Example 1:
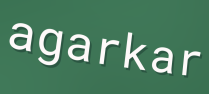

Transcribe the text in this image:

agarkar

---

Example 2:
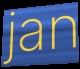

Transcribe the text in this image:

jan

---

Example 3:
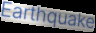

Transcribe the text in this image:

Earthquake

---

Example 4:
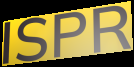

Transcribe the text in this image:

ISPR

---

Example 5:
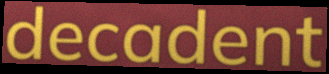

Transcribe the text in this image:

decadent